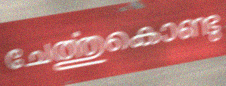
ചേൎത്തുകൊണ്ടു